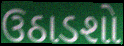
ઉઠાડશો